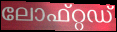
ലോഫ്റ്റഡ്